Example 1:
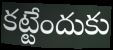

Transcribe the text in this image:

కట్టేందుకు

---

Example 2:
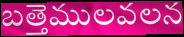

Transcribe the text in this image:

బత్తెములవలన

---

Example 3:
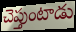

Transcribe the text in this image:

చెప్తుంటాడు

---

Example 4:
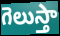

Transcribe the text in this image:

గెలుస్తా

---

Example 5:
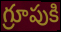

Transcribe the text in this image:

గ్రూపుకి